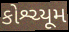
કોશ્ચ્યૂમ